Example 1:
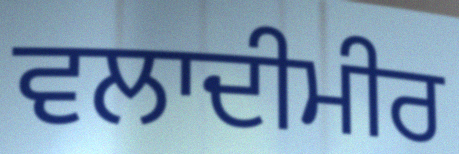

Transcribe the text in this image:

ਵਲਾਦੀਮੀਰ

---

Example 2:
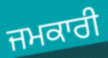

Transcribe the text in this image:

ਜਮਕਾਰੀ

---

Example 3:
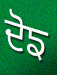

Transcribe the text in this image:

ਦੋਙ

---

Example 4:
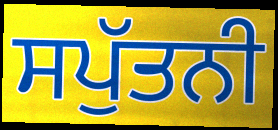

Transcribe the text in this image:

ਸਪੁੱਤਨੀ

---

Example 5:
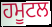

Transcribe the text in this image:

ਹਮੂਟਲ